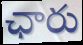
ఛారు